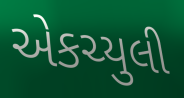
એકચ્યુલી